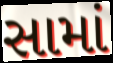
સામાં